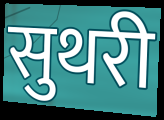
सुथरी